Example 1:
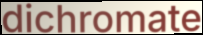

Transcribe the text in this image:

dichromate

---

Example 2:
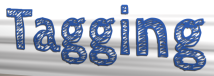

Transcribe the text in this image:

Tagging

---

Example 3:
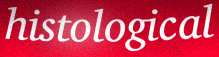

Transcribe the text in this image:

histological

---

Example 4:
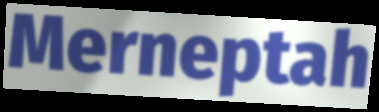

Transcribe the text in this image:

Merneptah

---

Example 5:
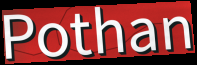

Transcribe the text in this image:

Pothan